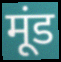
मूंड